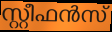
സ്റ്റീഫൻസ്